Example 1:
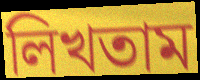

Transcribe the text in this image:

লিখতাম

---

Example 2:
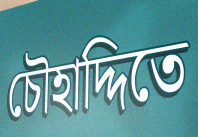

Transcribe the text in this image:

চৌহাদ্দিতে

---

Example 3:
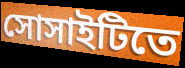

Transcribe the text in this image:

সোসাইটিতে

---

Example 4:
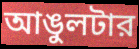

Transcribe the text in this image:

আঙুলটার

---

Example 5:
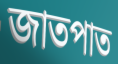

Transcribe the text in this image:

জাতপাত